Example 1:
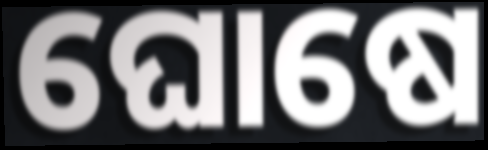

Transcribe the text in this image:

ଘୋଷେ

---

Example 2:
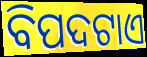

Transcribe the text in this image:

ବିପଦଟାଏ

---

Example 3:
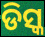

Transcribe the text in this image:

ଡିସ୍କ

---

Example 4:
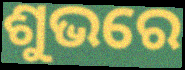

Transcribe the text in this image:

ଶୁଭରେ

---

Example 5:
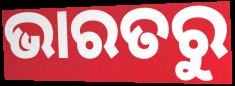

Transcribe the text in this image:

ଭାରତରୁ